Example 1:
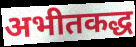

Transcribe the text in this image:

अभीतकद्ध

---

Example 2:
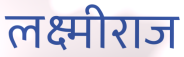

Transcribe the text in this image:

लक्ष्मीराज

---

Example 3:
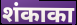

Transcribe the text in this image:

शंकाका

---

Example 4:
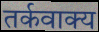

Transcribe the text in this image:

तर्कवाक्य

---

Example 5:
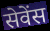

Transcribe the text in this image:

सेवेंस